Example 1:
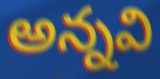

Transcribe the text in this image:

అన్నవి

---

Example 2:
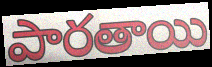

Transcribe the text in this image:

పారతాయి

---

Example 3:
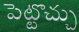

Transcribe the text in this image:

పెట్టొచ్చు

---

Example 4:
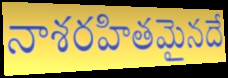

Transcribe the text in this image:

నాశరహితమైనదే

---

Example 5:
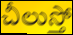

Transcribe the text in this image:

చీలుస్తో